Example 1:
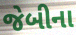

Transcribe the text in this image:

જેબીના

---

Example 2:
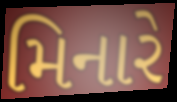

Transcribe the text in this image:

મિનારે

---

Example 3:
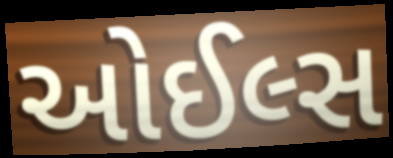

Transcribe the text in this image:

ઓઈલ્સ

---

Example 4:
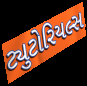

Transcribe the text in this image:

ટ્યુટોરિયલ્સ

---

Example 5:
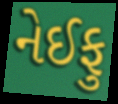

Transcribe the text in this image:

નેઈફુ